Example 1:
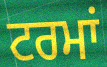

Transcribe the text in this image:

ਟਰਮਾਂ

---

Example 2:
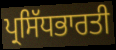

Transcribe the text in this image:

ਪ੍ਰਸਿੱਧਭਾਰਤੀ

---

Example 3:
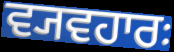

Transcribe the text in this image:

ਵ੍ਯਵਹਾਰਃ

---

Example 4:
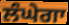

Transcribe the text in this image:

ਲੰਘੇਗਾ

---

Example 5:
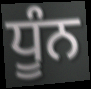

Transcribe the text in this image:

ਧੂੰਨ